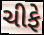
ચીફે